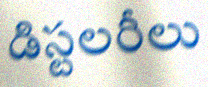
డిస్టలరీలు